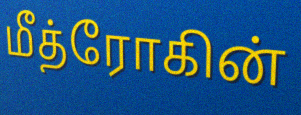
மீத்ரோகின்